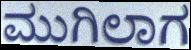
ಮುಗಿಲಾಗ